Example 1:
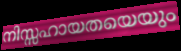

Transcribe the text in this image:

നിസ്സഹായതയെയും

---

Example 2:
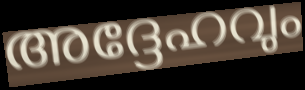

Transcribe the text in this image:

അദ്ദേഹവും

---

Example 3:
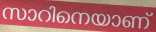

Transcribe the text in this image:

സാറിനെയാണ്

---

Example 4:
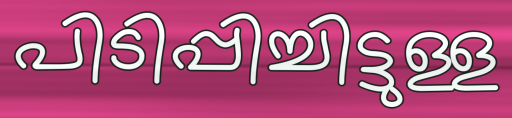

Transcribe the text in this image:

പിടിപ്പിച്ചിട്ടുള്ള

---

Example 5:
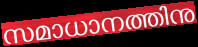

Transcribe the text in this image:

സമാധാനത്തിനു